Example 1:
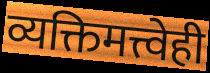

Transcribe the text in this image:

व्यक्तिमत्त्वेही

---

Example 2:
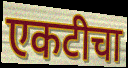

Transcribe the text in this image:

एकटीचा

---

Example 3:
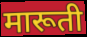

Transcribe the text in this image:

मारूती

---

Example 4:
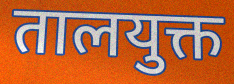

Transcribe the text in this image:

तालयुक्त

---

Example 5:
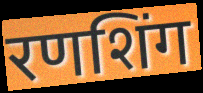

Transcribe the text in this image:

रणशिंग